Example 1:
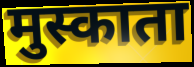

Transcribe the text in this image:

मुस्काता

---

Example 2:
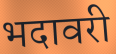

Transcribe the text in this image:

भदावरी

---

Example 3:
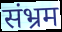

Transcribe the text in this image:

संभ्रम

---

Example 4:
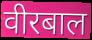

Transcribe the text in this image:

वीरबाल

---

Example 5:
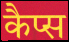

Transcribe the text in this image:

कैप्स